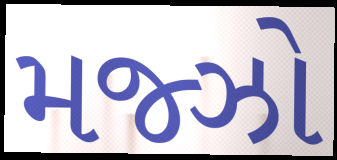
મજ્ઝો